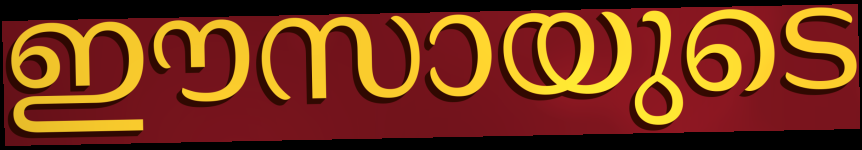
ഈസായുടെ